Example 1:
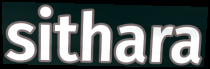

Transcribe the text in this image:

sithara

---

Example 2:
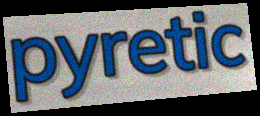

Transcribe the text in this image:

pyretic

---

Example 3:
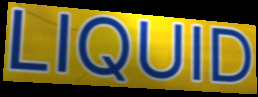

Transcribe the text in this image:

LIQUID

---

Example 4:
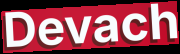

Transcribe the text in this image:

Devach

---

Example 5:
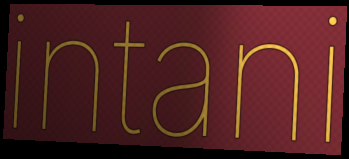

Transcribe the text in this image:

intani